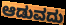
ಆಡುವದು